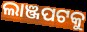
ଲାଞ୍ଜପଟକୁ